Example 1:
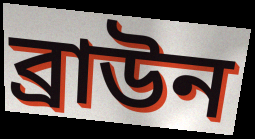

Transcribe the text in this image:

ব্রাউন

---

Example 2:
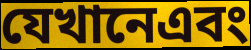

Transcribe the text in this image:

যেখানেএবং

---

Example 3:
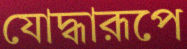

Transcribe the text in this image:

যোদ্ধারূপে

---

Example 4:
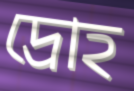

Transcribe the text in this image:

দ্রোহ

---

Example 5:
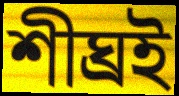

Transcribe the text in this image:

শীঘ্রই